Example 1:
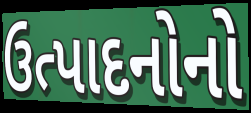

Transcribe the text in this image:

ઉત્પાદનોનો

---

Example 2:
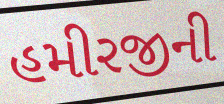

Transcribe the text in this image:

હમીરજીની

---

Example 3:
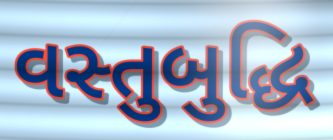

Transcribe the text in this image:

વસ્તુબુદ્ધિ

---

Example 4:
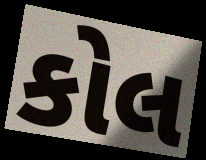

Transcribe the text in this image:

કોલ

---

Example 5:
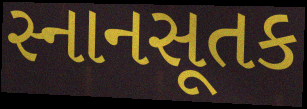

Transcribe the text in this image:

સ્નાનસૂતક